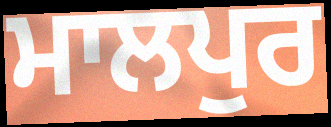
ਮਾਲਪੁਰ